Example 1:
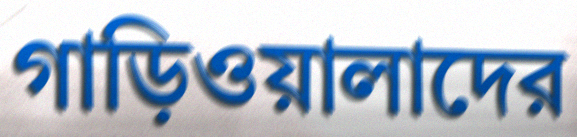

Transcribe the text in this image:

গাড়িওয়ালাদের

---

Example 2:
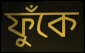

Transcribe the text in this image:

ফুঁকে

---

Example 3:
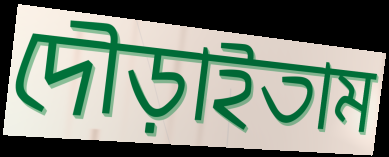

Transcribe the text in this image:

দৌড়াইতাম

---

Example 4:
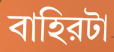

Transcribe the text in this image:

বাহিরটা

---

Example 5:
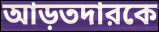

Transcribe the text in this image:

আড়তদারকে